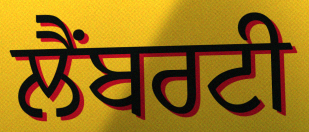
ਲੈਂਬਰਟੀ